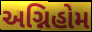
અગ્નિહોમ